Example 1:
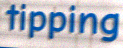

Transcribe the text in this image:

tipping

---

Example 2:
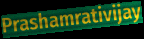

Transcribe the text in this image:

Prashamrativijay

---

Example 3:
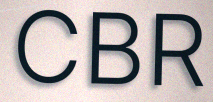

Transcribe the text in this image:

CBR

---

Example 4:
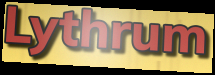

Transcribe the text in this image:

Lythrum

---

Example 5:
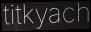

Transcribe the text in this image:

titkyach